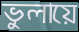
ভুলায়ে